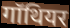
गॉथियर